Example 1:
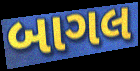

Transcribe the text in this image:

બાગલ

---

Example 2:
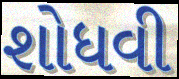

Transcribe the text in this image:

શોધવી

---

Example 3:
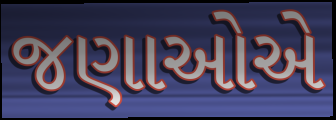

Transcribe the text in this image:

જણાઓએ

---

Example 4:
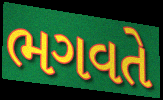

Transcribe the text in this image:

ભગવતે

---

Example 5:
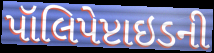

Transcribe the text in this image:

પૉલિપેપ્ટાઇડની